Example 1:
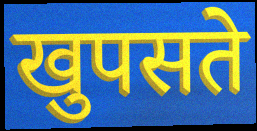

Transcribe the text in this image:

खुपसते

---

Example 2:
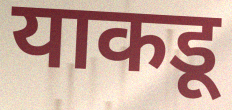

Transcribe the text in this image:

याकडू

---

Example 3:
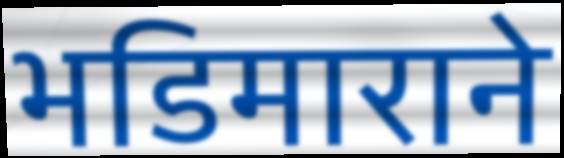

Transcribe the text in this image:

भडिमाराने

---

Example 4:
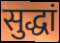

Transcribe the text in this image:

सुद्धां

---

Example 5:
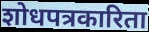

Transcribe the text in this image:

शोधपत्रकारिता